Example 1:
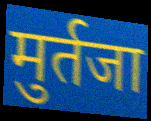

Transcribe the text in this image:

मुर्तजा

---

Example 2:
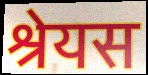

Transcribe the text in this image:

श्रेयस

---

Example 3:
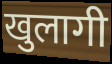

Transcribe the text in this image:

खुलागी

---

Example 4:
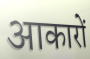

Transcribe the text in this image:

आकारों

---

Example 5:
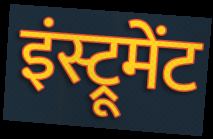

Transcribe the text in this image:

इंस्ट्रूमेंट